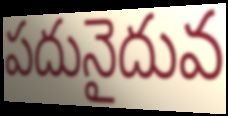
పదునైదువ